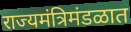
राज्यमंत्रिमंडळात